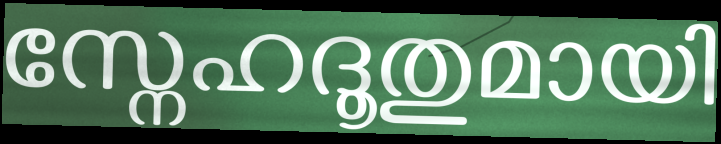
സ്നേഹദൂതുമായി